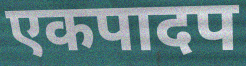
एकपादप